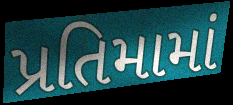
પ્રતિમામાં